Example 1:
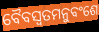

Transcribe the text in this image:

ବୈବସ୍ଵତମନୁବଂଶେ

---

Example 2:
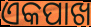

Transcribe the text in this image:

ଏକପାଖ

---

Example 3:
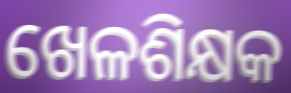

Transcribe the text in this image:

ଖେଳଶିକ୍ଷକ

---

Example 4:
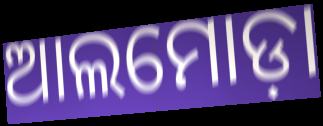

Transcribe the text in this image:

ଆଲମୋଡ଼ା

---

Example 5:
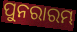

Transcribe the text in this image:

ପୁନରାରମ୍ଭ